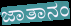
ಜಾತಾನಂ